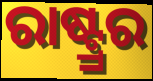
ରାଷ୍ଟ୍ର୍ରର